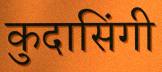
कुदासिंगी